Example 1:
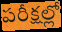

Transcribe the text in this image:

పరీక్షల్లో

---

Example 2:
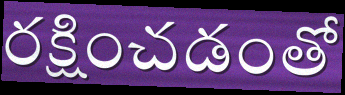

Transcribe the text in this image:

రక్షించడంతో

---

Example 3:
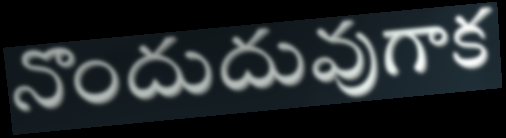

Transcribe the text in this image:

నొందుదువుగాక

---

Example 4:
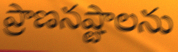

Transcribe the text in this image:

ప్రాణనష్టాలను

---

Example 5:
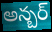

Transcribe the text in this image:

అన్బర్